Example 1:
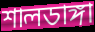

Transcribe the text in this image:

শালডাঙ্গা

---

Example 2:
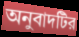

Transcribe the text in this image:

অনুবাদটির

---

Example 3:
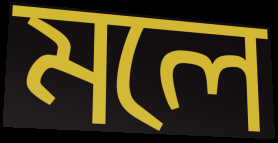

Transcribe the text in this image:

মলে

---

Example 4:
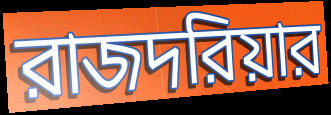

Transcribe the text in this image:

রাজদরিয়ার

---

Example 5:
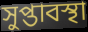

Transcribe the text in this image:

সুপ্তাবস্থা